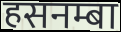
हसनम्बा